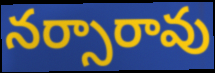
నర్సారావు